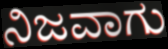
ನಿಜವಾಗು